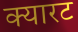
क्यारट